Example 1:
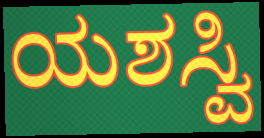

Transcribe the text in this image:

ಯಶಸ್ವಿ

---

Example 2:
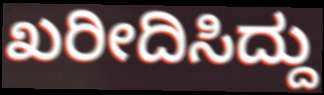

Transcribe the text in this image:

ಖರೀದಿಸಿದ್ದು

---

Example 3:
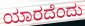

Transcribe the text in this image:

ಯಾರದೆಂದು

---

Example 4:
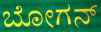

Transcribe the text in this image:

ಬೋಗನ್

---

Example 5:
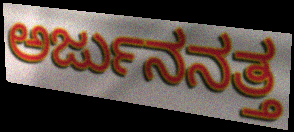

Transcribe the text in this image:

ಅರ್ಜುನನತ್ತ